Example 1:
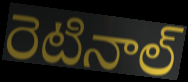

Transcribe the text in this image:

రెటినాల్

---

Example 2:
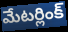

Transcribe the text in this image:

మేటర్లింక్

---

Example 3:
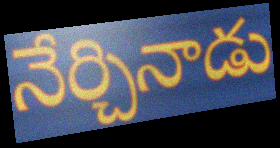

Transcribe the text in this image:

నేర్చినాడు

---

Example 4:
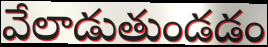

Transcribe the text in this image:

వేలాడుతుండడం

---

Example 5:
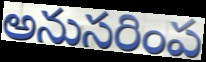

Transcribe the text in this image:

అనుసరింప